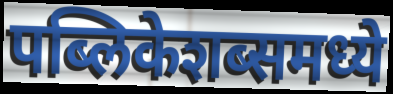
पब्लिकेशब्समध्ये